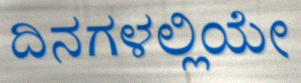
ದಿನಗಳಲ್ಲಿಯೇ